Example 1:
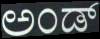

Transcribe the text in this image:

ಅಂಡ್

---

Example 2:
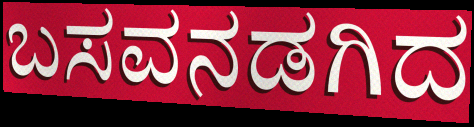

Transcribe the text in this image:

ಬಸವನಡಗಿದ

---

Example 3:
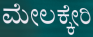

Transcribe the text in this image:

ಮೇಲಕ್ಕೇರಿ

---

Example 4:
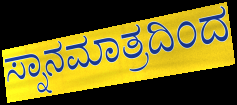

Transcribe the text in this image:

ಸ್ನಾನಮಾತ್ರದಿಂದ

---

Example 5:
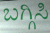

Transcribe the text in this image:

ಬಗ್ಗಿಸಿ